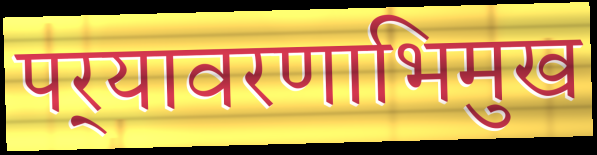
पर्यावरणाभिमुख